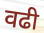
वढी